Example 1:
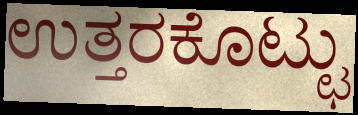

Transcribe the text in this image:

ಉತ್ತರಕೊಟ್ಟು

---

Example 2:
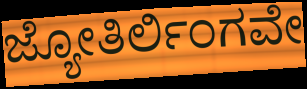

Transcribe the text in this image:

ಜ್ಯೋತಿರ್ಲಿಂಗವೇ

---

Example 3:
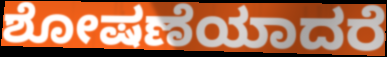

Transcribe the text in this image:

ಶೋಷಣೆಯಾದರೆ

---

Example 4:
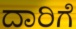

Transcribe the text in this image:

ದಾರಿಗೆ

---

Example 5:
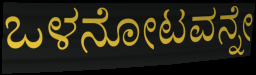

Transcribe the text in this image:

ಒಳನೋಟವನ್ನೇ